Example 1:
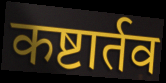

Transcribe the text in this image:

कष्टार्तव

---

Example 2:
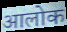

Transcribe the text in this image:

आलोक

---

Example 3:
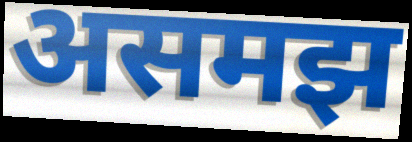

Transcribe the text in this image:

असमझ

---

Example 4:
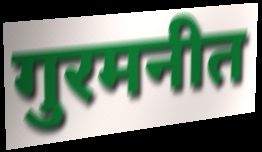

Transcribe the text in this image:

गुरमनीत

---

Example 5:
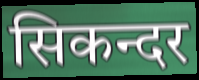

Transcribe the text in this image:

सिकन्दर